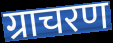
ग्राचरण